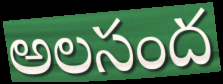
అలసంద